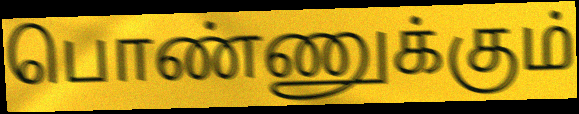
பொண்ணுக்கும்